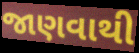
જાણવાથી